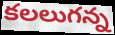
కలలుగన్న